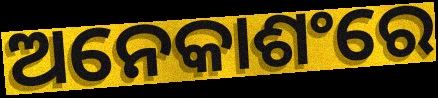
ଅନେକାଶଂରେ